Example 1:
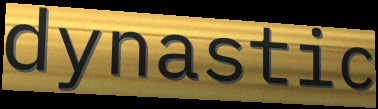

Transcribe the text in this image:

dynastic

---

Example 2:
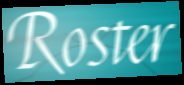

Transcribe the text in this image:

Roster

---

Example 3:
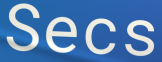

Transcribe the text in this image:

Secs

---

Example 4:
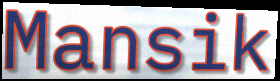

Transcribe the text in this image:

Mansik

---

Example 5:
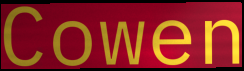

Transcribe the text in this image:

Cowen